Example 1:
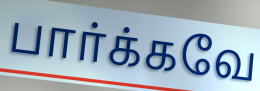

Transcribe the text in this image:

பார்க்கவே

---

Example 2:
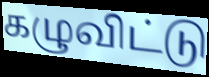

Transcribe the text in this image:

கழுவிட்டு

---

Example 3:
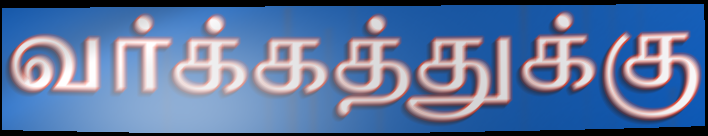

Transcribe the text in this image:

வர்க்கத்துக்கு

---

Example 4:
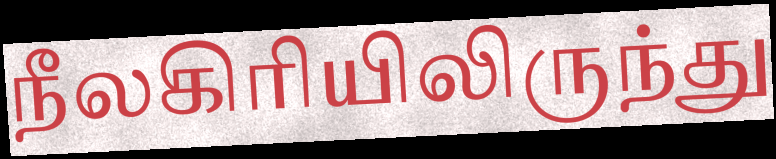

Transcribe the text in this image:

நீலகிரியிலிருந்து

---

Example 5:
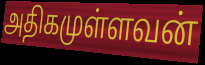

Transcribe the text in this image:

அதிகமுள்ளவன்